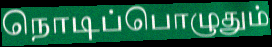
நொடிப்பொழுதும்